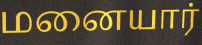
மனையார்